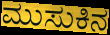
ಮುಸುಕಿನ